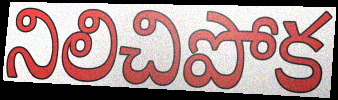
నిలిచిపోక